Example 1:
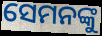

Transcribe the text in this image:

ସେମନଙ୍କୁ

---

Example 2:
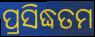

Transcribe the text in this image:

ପ୍ରସିଦ୍ଧତମ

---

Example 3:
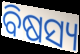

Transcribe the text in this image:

ବିଷସ୍ୟ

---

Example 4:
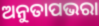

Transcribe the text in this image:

ଅନୁତାପଭରା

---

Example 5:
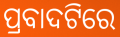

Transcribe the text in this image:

ପ୍ରବାଦଟିରେ